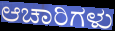
ಆಚಾರಿಗಳು